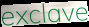
exclave